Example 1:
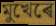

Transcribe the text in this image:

মুখেৰে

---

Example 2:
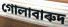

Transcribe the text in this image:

গোলাবাৰুদ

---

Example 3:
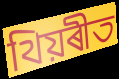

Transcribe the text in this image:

থিয়ৰীত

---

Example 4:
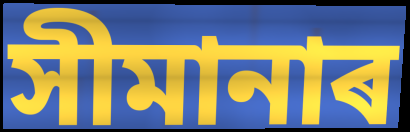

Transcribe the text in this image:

সীমানাৰ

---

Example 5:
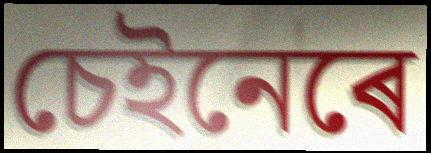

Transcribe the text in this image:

চেইনেৰে